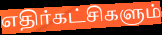
எதிர்கட்சிகளும்